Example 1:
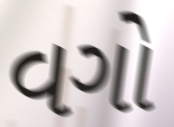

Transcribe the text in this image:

વગો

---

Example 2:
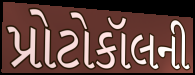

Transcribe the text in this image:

પ્રોટોકૉલની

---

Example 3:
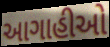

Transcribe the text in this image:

આગાહીઓ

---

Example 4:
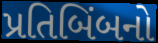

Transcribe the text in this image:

પ્રતિબિંબનો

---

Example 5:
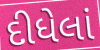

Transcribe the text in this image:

દીધેલાં